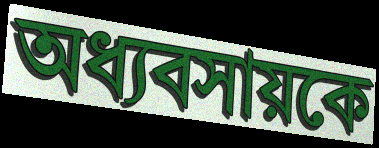
অধ্যবসায়কে